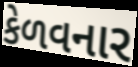
કેળવનાર